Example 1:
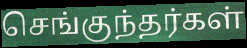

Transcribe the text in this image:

செங்குந்தர்கள்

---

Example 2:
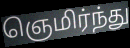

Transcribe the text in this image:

ஞெமிர்ந்து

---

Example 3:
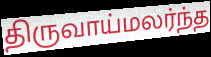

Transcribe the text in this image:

திருவாய்மலர்ந்த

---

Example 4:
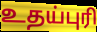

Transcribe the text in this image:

உதய்புரி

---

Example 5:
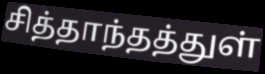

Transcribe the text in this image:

சித்தாந்தத்துள்